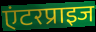
एंटरप्राइज